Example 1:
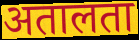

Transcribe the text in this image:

अतालता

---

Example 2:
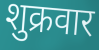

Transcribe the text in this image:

शुक्रवार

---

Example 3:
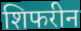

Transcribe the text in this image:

शिफरीन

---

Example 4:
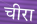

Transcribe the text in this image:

चीरा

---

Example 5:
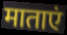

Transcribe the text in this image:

माताएं